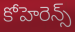
కోహెరెన్స్